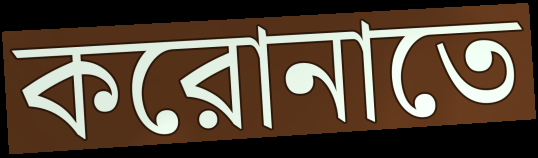
করোনাতে